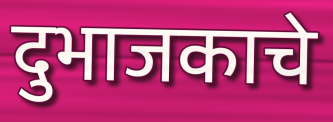
दुभाजकाचे